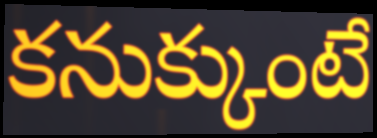
కనుక్కుంటే